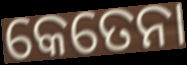
କେତେନା